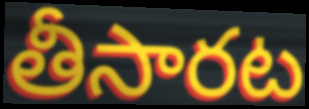
తీసారట